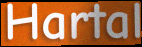
Hartal